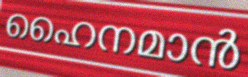
ഹൈനമാൻ